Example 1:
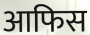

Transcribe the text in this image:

आफिस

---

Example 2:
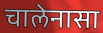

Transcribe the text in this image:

चालेनासा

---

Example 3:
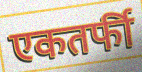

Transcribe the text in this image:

एकतर्फी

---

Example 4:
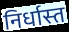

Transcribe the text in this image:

निर्धास्त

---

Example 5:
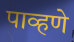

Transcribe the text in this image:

पाव्हणे